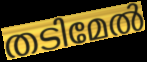
തടിമേൽ